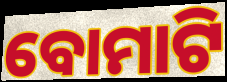
ବୋମାଟି